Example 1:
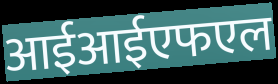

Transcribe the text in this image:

आईआईएफएल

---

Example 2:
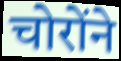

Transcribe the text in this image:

चोरोंने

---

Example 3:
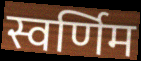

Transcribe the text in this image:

स्‍वर्णिम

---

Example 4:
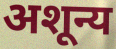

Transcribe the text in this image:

अशून्य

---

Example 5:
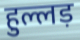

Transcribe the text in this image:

हुल्लड़